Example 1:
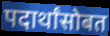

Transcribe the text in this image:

पदार्थांसोबत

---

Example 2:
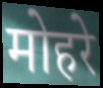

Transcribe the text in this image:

मोहरे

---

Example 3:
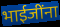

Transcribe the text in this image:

भाईजींना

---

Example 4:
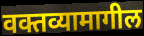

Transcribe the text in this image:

वक्तव्यामागील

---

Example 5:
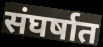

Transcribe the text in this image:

संघर्षात